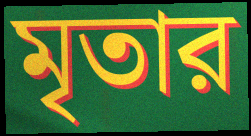
মৃতার